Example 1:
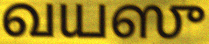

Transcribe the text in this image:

வயஸு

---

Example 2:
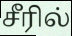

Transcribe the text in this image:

சீரில்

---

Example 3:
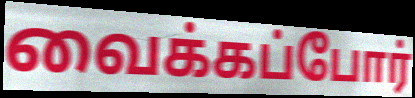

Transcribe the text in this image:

வைக்கப்போர்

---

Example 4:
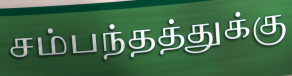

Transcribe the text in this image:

சம்பந்தத்துக்கு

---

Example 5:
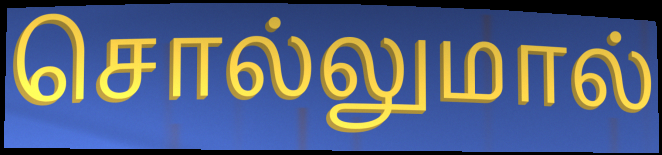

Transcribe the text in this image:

சொல்லுமால்